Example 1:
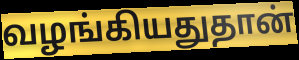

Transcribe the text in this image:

வழங்கியதுதான்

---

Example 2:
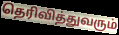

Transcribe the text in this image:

தெரிவித்துவரும்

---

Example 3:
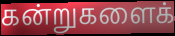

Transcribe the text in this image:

கன்றுகளைக்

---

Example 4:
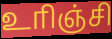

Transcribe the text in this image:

உரிஞ்சி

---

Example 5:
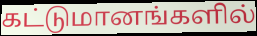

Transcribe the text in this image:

கட்டுமானங்களில்